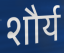
शौर्य